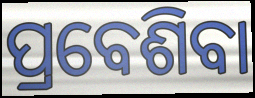
ପ୍ରବେଶିବା